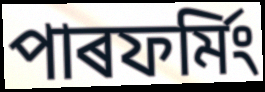
পাৰফৰ্মিং